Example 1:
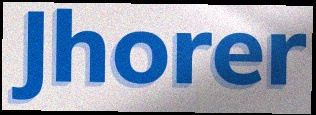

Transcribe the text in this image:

Jhorer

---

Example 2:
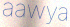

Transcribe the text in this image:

aawya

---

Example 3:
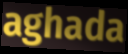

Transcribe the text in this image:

aghada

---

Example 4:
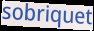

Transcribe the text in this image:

sobriquet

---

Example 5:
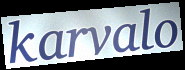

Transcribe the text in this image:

karvalo